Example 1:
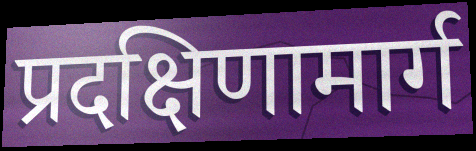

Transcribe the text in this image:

प्रदक्षिणामार्ग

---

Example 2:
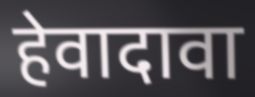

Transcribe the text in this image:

हेवादावा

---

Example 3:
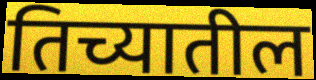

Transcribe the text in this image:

तिच्यातील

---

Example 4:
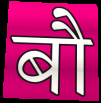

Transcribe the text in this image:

बौ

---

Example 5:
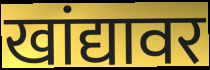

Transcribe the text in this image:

खांद्यावर